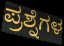
ಪ್ರಶ್ನೆಗಳ